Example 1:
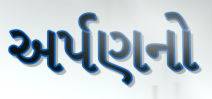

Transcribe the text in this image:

અર્પણનો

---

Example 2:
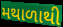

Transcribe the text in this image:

મથાળાથી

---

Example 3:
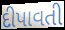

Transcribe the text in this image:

દીપાવતી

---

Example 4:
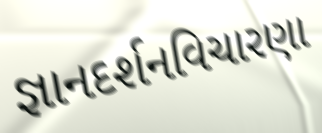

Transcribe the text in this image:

જ્ઞાનદર્શનવિચારણા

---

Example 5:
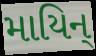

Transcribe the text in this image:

માયિન્